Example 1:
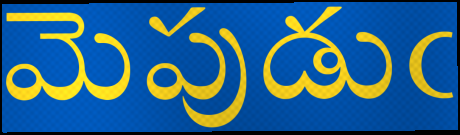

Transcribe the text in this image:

మెపుడుఁ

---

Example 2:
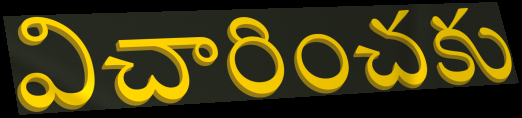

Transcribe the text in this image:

విచారించకు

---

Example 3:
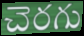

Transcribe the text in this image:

చెరగు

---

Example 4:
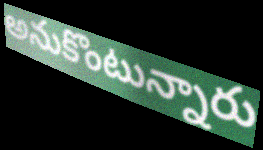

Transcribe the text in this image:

అనుకొంటున్నారు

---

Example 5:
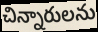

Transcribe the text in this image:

చిన్నారులను